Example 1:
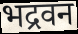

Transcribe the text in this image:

भद्रवन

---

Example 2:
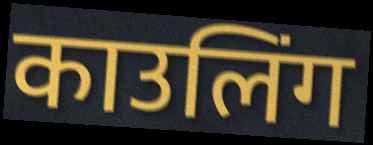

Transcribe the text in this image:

काउलिंग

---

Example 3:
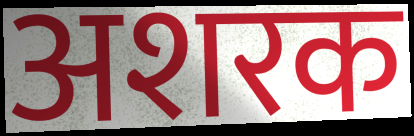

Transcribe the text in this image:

अशरक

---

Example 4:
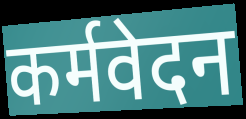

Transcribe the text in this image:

कर्मवेदन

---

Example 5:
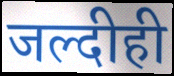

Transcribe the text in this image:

जल्दीही